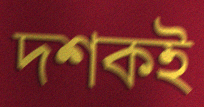
দশকই